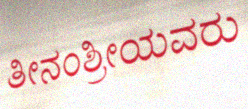
ತೀನಂಶ್ರೀಯವರು